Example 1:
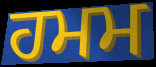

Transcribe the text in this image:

ਹਮਮ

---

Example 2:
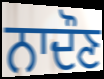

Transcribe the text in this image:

ਨਾਦੌਣ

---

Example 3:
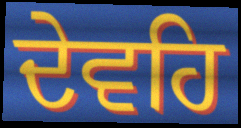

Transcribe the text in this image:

ਦੇਵਹਿ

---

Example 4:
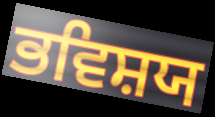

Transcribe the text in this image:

ਭਵਿਸ਼ਯ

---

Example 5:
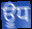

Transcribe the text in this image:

ਊਧ